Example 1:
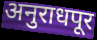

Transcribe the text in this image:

अनुराधपूर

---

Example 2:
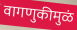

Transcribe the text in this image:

वागणुकीमुळं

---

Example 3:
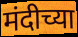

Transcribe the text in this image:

मंदीच्या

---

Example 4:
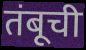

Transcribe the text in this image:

तंबूची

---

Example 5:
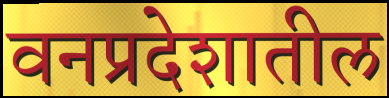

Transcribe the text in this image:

वनप्रदेशातील